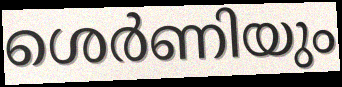
ശെർണിയും